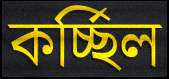
কর্চ্ছিল